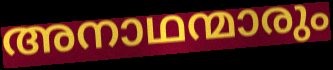
അനാഥന്മാരും